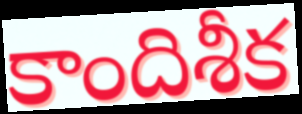
కాందిశీక